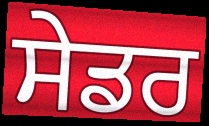
ਸੇਡਰ